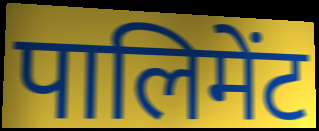
पालिमेंट